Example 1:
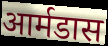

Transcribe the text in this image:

आर्मडास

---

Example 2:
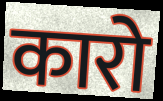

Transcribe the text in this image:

कारो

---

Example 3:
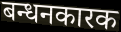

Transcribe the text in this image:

बन्धनकारक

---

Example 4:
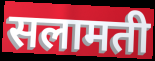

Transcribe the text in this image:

सलामती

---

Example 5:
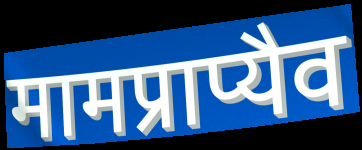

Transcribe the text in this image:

मामप्राप्यैव